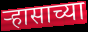
ऱ्हासाच्या